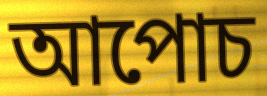
আপোচ